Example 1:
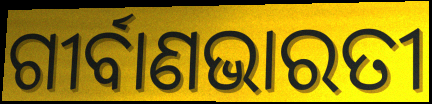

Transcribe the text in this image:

ଗୀର୍ବାଣଭାରତୀ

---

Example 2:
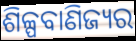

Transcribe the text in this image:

ଶିଳ୍ପବାଣିଜ୍ୟର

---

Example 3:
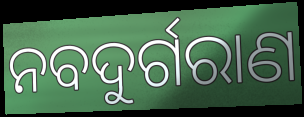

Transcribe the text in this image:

ନବଦୁର୍ଗରାଣ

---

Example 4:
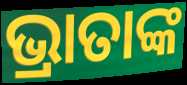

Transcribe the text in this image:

ଭ୍ରାତାଙ୍କ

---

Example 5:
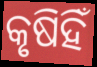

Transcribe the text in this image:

କୃଷିହିଁ